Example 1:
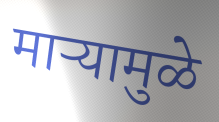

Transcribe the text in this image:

माऱ्यामुळे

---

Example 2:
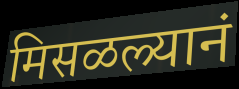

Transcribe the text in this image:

मिसळल्यानं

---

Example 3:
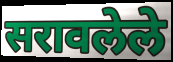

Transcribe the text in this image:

सरावलेले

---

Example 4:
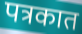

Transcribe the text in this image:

पत्रकात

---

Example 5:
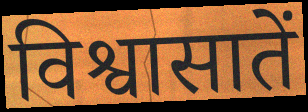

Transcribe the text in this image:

विश्वासातें